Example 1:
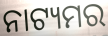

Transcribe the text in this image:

ନାଟ୍ୟମର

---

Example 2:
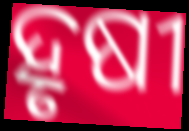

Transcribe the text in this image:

ହୃଷୀ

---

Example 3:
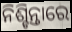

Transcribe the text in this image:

ନିଶ୍ଚିନ୍ତାରେ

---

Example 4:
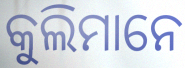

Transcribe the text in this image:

କୁଲିମାନେ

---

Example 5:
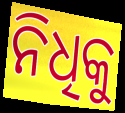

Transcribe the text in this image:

ନିଧିକୁ